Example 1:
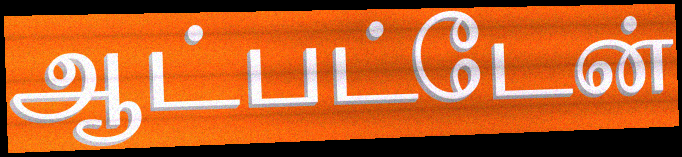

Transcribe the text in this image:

ஆட்பட்டேன்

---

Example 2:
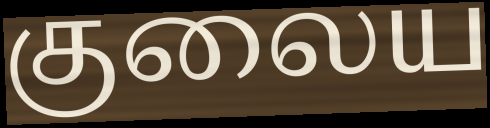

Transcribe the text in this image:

குலைய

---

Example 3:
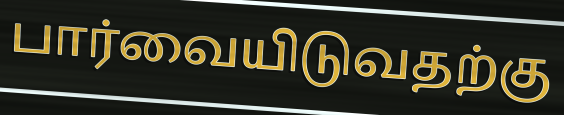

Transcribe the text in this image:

பார்வையிடுவதற்கு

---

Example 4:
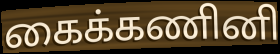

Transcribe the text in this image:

கைக்கணினி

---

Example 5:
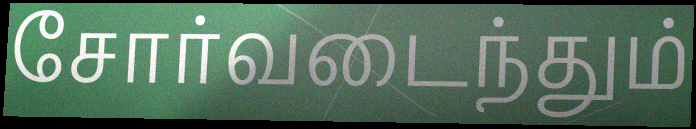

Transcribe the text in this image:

சோர்வடைந்தும்